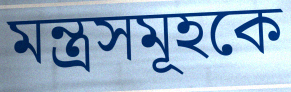
মন্ত্রসমূহকে